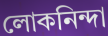
লোকনিন্দা